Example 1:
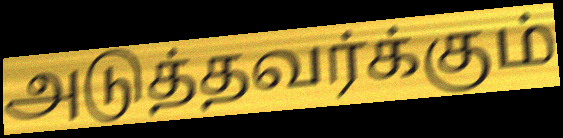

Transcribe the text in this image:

அடுத்தவர்க்கும்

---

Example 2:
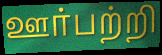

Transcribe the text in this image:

ஊர்பற்றி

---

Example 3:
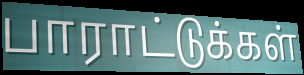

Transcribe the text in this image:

பாராட்டுக்கள்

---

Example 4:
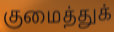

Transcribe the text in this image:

குமைத்துக்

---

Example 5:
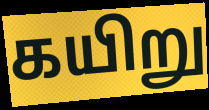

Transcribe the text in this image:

கயிறு